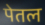
पेतल